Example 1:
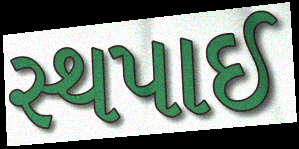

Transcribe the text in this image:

સ્થપાઈ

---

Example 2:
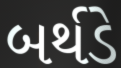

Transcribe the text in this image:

બર્થડે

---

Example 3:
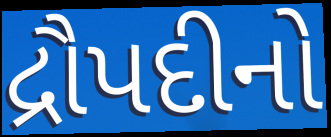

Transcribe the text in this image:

દ્રૌપદીનો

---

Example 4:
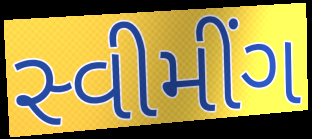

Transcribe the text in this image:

સ્વીમીંગ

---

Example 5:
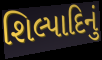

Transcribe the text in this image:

શિલ્પાદિનું